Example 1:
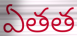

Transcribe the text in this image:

ఏతత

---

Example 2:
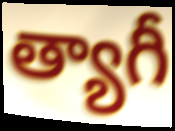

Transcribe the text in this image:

త్యాగీ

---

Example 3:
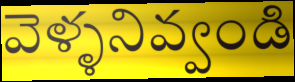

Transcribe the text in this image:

వెళ్ళనివ్వండి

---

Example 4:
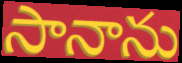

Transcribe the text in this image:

సానాను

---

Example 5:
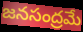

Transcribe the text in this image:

జనసంద్రమే